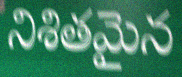
నిశితమైన